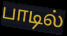
பாடில்